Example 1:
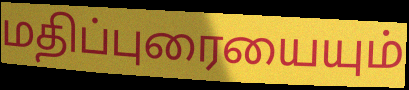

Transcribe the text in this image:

மதிப்புரையையும்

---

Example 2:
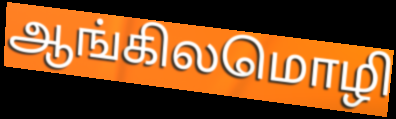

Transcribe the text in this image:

ஆங்கிலமொழி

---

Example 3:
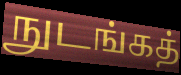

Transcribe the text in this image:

நுடங்கத்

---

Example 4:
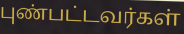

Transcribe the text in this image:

புண்பட்டவர்கள்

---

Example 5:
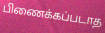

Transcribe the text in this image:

பிணைக்கப்படாத